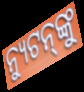
ନ୍ୟୁଟନ୍‌ଙ୍କୁ